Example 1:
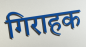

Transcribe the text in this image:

गिराहक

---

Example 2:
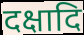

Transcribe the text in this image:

दक्षादि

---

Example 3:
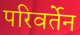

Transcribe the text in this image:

परिवर्तेन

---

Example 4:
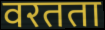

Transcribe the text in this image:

वरतता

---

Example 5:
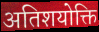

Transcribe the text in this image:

अतिशयोक्ति